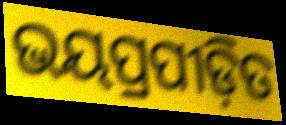
ଭୟପ୍ରପୀଡ଼ିତ